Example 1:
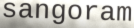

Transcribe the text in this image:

sangoram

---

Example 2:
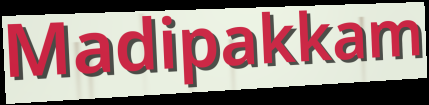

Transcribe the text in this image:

Madipakkam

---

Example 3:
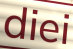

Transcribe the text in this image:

diei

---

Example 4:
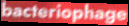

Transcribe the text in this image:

bacteriophage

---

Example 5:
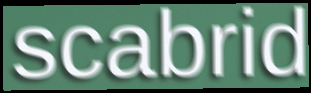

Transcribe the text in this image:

scabrid